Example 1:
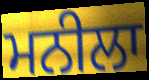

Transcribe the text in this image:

ਮਨੀਲਾ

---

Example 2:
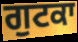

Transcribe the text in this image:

ਗੁਟਕਾ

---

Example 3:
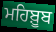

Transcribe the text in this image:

ਮਹਿਬ਼ੂਬ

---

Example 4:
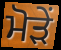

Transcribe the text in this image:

ਮੋੜੇਂ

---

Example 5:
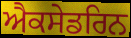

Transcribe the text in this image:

ਐਕਸੇਡਰਿਨ